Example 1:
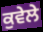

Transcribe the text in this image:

ਕੁਵੇਲੇ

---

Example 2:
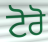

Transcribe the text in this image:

ਟੋਰੋ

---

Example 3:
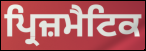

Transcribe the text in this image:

ਪ੍ਰਿਜ਼ਮੈਟਿਕ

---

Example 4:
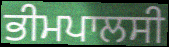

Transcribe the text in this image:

ਭੀਮਪਾਲਸੀ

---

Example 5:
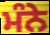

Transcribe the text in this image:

ਮੰਨੇ